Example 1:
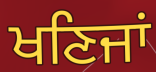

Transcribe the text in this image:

ਖਣਿਜਾਂ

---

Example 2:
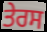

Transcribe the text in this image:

ਤੇਰਸ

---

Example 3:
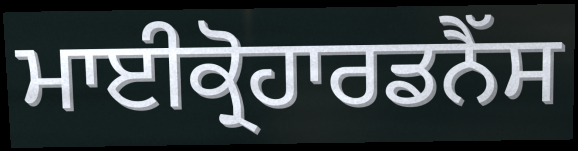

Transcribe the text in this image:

ਮਾਈਕ੍ਰੋਹਾਰਡਨੈੱਸ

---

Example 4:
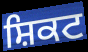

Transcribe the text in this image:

ਸ਼ਿਕਟ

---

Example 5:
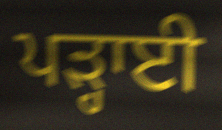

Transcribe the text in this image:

ਪੜ੍ਹਾਈ